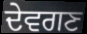
ਦੇਵਗਣ